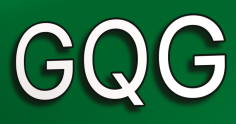
GQG